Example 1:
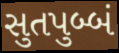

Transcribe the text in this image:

સુતપુબ્બં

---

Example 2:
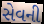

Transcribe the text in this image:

સેવની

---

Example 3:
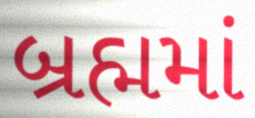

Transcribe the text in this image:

બ્રહ્મમાં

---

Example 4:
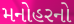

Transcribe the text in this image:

મનોહરનો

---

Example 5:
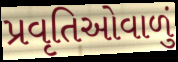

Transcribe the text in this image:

પ્રવૃતિઓવાળું